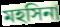
মহসিনা